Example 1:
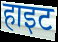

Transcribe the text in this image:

हाइट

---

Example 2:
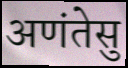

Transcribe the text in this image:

अणंतेसु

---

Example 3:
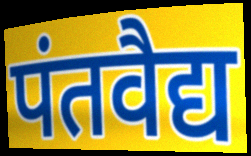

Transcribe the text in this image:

पंतवैद्य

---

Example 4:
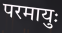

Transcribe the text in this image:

परमायुः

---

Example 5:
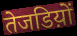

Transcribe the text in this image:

तेजडिय़ों